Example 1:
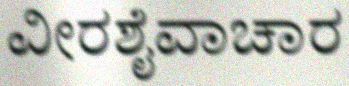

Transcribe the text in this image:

ವೀರಶೈವಾಚಾರ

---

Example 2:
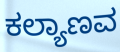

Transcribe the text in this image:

ಕಲ್ಯಾಣವ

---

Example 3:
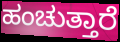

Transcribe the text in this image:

ಹಂಚುತ್ತಾರೆ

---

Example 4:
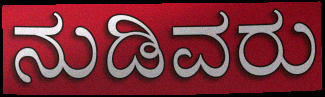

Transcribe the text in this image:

ನುಡಿವರು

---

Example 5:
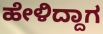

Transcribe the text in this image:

ಹೇಳಿದ್ದಾಗ